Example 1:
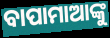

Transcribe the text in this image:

ବାପାମାଆଙ୍କୁ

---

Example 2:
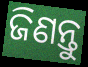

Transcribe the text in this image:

ଜିଣନ୍ତୁ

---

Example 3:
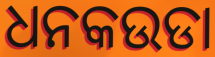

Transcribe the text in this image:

ଧନକଉଡା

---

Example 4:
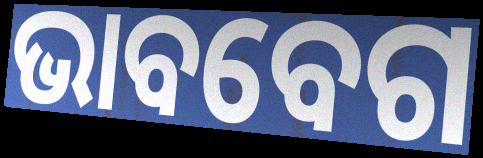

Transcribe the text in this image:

ଭାବବେଗ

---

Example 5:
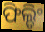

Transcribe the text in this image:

ଫିଲ୍ଡିଂ